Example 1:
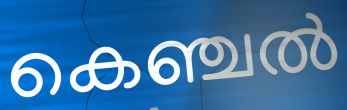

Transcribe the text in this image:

കെഞ്ചൽ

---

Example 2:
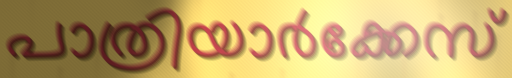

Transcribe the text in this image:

പാത്രിയാർക്കേസ്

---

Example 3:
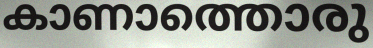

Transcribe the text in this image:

കാണാത്തൊരു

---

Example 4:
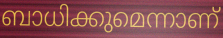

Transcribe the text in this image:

ബാധിക്കുമെന്നാണ്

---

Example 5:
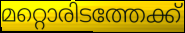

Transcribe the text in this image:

മറ്റൊരിടത്തേക്ക്